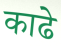
काढे